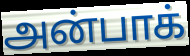
அன்பாக்